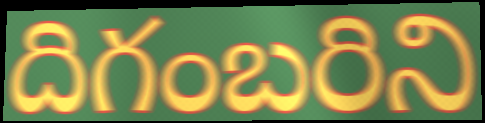
దిగంబరిని